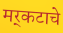
मर्कटाचे